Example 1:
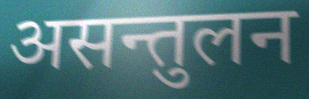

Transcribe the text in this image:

असन्तुलन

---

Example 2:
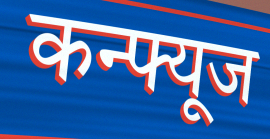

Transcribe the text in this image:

कन्फ्यूज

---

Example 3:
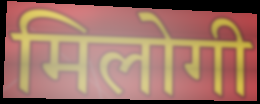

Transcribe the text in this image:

मिलोगी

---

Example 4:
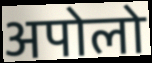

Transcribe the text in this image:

अपोलो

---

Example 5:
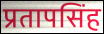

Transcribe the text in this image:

प्रतापसिंह